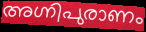
അഗ്നിപുരാണം